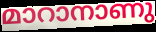
മാറാനാണു